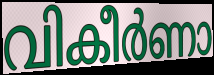
വികീർണാ